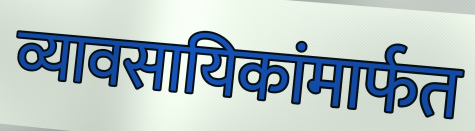
व्यावसायिकांमार्फत